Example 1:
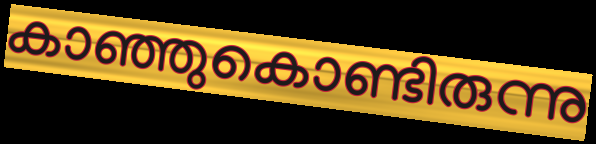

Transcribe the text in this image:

കാഞ്ഞുകൊണ്ടിരുന്നു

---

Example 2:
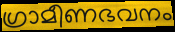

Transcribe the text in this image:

ഗ്രാമീണഭവനം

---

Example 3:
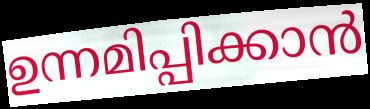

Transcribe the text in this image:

ഉന്നമിപ്പിക്കാൻ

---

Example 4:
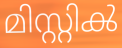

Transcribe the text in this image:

മിസ്റ്റിൿ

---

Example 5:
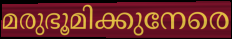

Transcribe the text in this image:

മരുഭൂമിക്കുനേരെ